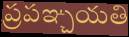
ప్రపఞ్చయతి